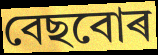
বেছবোৰ